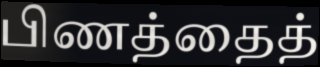
பிணத்தைத்